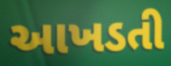
આખડતી